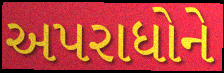
અપરાધોને